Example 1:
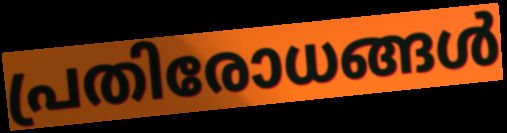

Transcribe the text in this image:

പ്രതിരോധങ്ങൾ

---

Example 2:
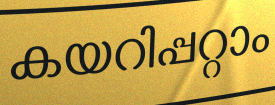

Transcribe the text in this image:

കയറിപ്പറ്റാം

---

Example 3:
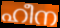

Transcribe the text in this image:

ഹീന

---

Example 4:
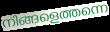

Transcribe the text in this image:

നിങ്ങളെത്തന്നെ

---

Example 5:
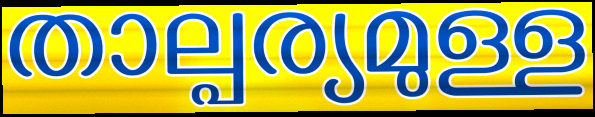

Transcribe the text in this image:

താല്പര്യമുള്ള